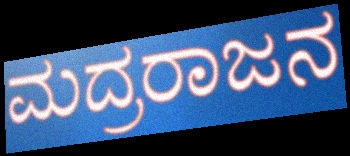
ಮದ್ರರಾಜನ